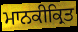
ਮਾਨਕੀਕ੍ਰਿਤ